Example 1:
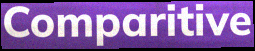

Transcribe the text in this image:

Comparitive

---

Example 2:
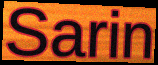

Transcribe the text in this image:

Sarin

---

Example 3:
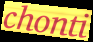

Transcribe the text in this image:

chonti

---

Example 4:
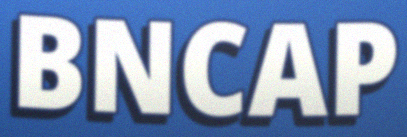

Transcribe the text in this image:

BNCAP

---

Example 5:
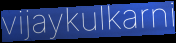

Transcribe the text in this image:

vijaykulkarni